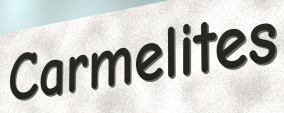
Carmelites